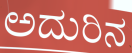
ಅದುರಿನ